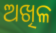
ଅଖିଳ